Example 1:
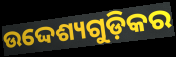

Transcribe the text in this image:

ଉଦ୍ଦେଶ୍ୟଗୁଡ଼ିକର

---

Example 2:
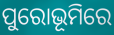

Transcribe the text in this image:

ପୁରୋଭୂମିରେ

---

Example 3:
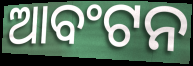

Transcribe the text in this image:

ଆବଂଟନ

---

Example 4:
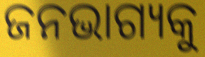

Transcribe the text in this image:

ଜନଭାଗ୍ୟକୁ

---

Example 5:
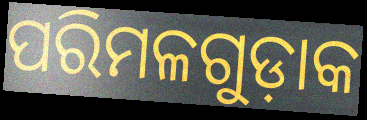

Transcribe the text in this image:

ପରିମଳଗୁଡ଼ାକ